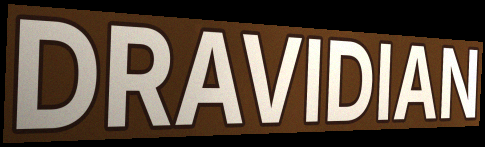
DRAVIDIAN